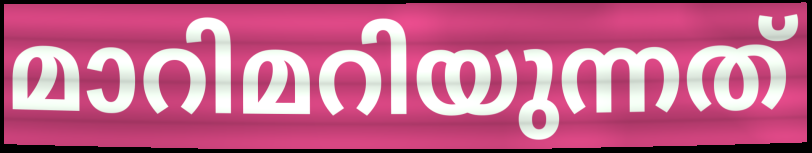
മാറിമറിയുന്നത്